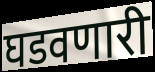
घडवणारी